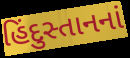
હિંદુસ્તાનનાં